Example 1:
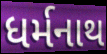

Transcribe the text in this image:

ધર્મનાથ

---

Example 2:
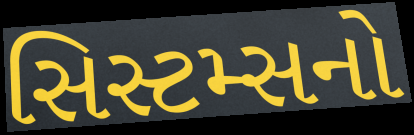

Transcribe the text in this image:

સિસ્ટમ્સનો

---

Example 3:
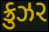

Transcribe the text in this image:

ક્રુઝર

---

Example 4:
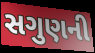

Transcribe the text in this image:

સગુણની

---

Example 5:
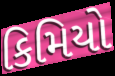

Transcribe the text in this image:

કિમિયો